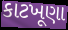
કાટખૂણા